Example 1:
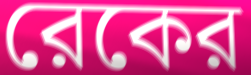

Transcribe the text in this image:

রেকের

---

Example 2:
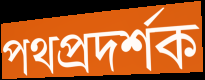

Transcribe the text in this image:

পথপ্রদর্শক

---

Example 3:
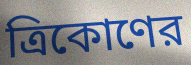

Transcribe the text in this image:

ত্রিকোণের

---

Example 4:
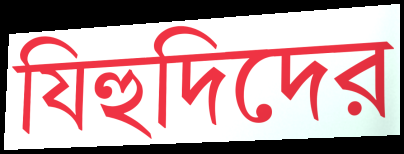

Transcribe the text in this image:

যিহুদিদের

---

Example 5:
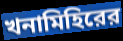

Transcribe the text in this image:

খনামিহিরের